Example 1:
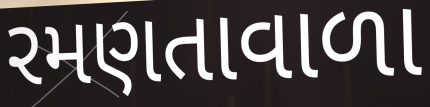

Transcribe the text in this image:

રમણતાવાળા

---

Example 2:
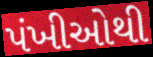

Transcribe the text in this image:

પંખીઓથી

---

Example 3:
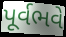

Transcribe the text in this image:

પૂર્વભવે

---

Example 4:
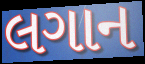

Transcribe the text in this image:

લગાન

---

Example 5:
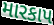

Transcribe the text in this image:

મારકાપ